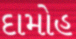
દામોહ